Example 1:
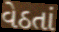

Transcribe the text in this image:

વેઠતાં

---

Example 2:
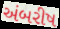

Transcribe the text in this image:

અંબરીષ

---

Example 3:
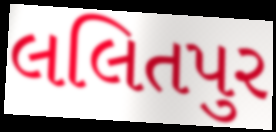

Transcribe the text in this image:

લલિતપુર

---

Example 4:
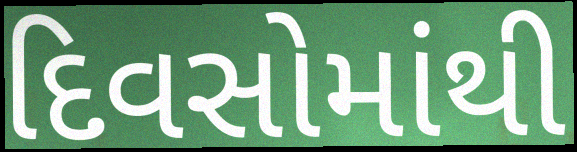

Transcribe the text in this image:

દિવસોમાંથી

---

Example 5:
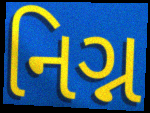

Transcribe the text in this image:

નિગ્ન